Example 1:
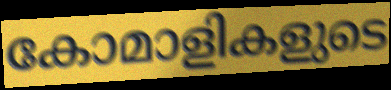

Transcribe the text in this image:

കോമാളികളുടെ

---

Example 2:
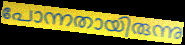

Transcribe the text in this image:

പോന്നതായിരുന്നു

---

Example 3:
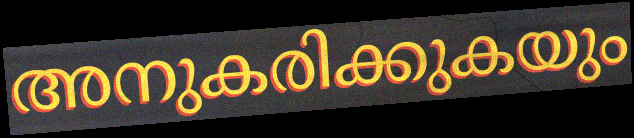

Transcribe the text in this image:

അനുകരിക്കുകയും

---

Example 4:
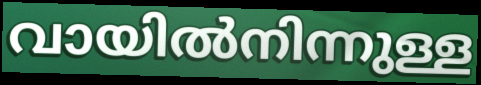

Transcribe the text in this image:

വായിൽനിന്നുള്ള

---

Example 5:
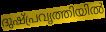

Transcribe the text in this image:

ദുഷ്പ്രവൃത്തിയിൽ